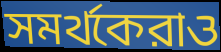
সমর্থকেরাও